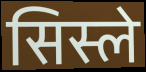
सिस्ले